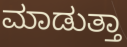
ಮಾಡುತ್ತಾ